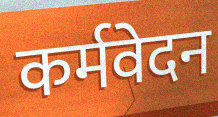
कर्मवेदन